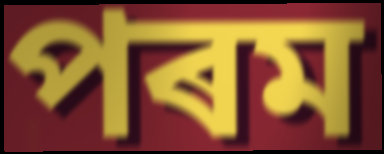
পৰম